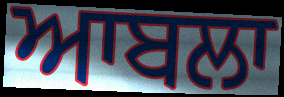
ਆਬਲਾ